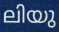
ലിയു